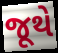
જૂથે